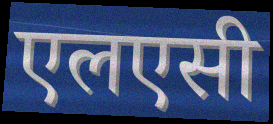
एलएसी